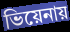
ভিয়েনায়